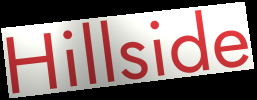
Hillside